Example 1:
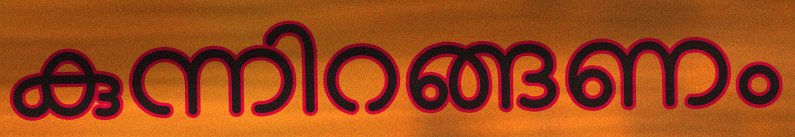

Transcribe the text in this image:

കുന്നിറങ്ങണം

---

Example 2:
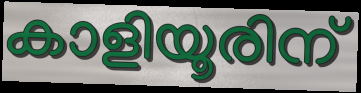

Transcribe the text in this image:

കാളിയൂരിന്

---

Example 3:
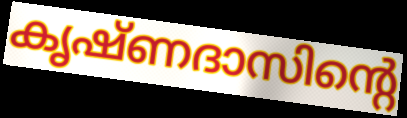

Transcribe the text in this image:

കൃഷ്ണദാസിന്റെ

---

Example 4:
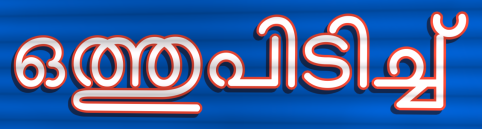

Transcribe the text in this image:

ഒത്തുപിടിച്ച്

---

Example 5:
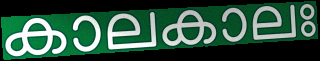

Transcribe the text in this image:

കാലകാലഃ